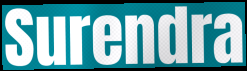
Surendra